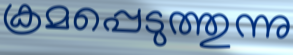
ക്രമപ്പെടുത്തുന്നു